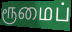
ரூமைப்